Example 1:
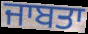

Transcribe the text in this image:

ਜਾਬਤਾ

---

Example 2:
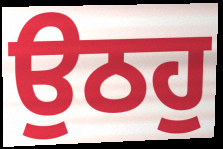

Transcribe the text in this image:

ਉਠਹੁ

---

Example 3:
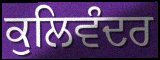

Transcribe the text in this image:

ਕੁਲਿਵੰਦਰ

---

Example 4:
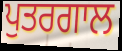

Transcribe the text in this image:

ਪੁਤਰਗਾਲ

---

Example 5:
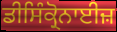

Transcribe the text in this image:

ਡੀਸਿੰਕ੍ਰੋਨਾਈਜ਼